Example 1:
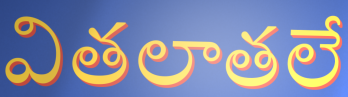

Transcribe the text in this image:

వితలాతలే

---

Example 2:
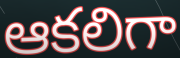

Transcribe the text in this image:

ఆకలిగా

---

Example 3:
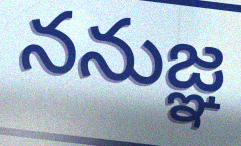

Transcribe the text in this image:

ననుజ్ఞ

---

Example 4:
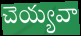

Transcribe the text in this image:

చెయ్యవా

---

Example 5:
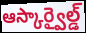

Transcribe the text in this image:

ఆస్కార్వైల్డ్